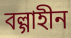
বল্গাহীন